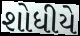
શોધીયે